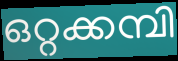
ഒറ്റക്കമ്പി